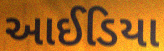
આઈડિયા